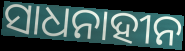
ସାଧନାହୀନ